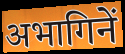
अभागिनें